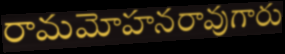
రామమోహనరావుగారు